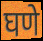
घणे